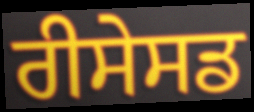
ਰੀਸੇਸਡ